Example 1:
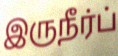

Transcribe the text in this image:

இருநீர்ப்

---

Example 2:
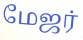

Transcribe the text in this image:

மேஜர்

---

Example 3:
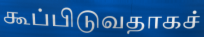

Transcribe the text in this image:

கூப்பிடுவதாகச்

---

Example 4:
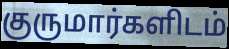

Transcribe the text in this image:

குருமார்களிடம்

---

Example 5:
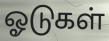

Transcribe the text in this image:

ஓடுகள்